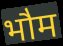
भौम